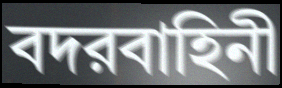
বদরবাহিনী